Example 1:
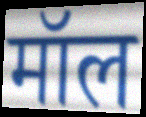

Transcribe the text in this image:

मॉल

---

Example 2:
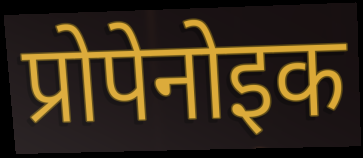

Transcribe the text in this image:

प्रोपेनोइक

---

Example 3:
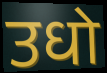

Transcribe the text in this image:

उधो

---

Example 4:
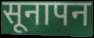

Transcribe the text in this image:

सूनापन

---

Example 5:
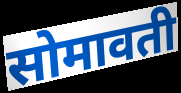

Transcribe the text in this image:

सोमावती